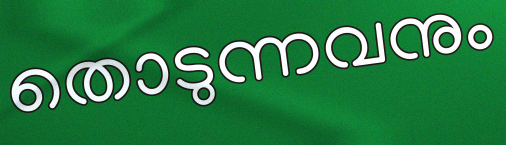
തൊടുന്നവനും